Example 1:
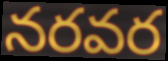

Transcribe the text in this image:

నరవర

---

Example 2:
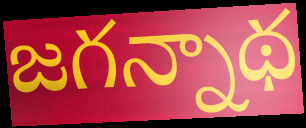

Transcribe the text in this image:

జగన్నాథ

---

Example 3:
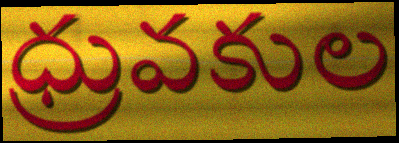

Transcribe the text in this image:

ధ్రువకుల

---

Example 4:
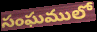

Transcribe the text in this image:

సంఘములో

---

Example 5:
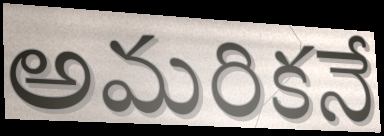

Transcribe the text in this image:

అమరికనే